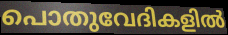
പൊതുവേദികളിൽ